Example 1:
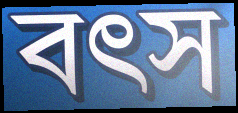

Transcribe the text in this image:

বৎস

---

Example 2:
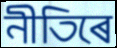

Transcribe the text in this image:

নীতিৰে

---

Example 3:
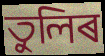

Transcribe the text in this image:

তুলিৰ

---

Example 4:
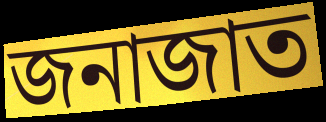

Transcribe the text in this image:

জনাজাত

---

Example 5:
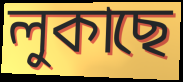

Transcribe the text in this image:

লুকাছে